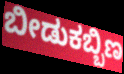
ಬೀಡುಕಬ್ಬಿಣ